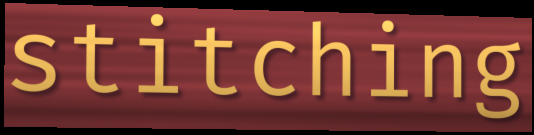
stitching